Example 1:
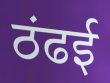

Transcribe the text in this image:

ठंढई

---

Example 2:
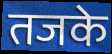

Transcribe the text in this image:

तजके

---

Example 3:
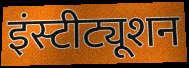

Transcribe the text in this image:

इंस्‍टीट्यूशन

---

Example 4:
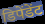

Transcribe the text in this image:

डिपेंडेंट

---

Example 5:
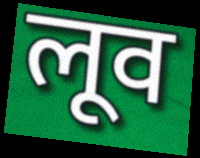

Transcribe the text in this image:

लूव